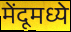
मेंदूमध्ये